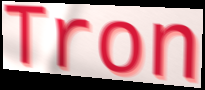
Tron